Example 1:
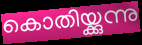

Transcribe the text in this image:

കൊതിയ്ക്കുന്നു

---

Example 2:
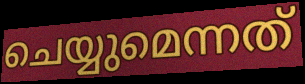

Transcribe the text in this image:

ചെയ്യുമെന്നത്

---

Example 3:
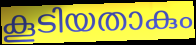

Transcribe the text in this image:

കൂടിയതാകും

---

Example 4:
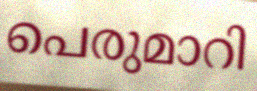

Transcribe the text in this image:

പെരുമാറി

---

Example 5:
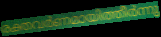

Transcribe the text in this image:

രക്തവർണമായിത്തീർന്നു